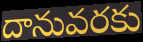
దానువరకు